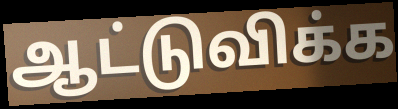
ஆட்டுவிக்க